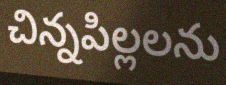
చిన్నపిల్లలను